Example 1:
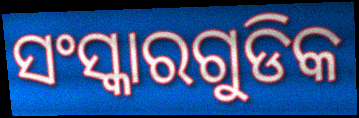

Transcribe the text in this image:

ସଂସ୍କାରଗୁଡିକ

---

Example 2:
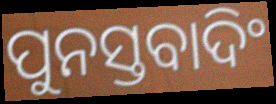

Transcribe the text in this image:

ପୁନସ୍ତବାଦିଂ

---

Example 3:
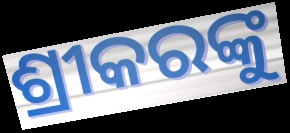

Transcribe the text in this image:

ଶ୍ରୀକରଙ୍କୁ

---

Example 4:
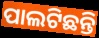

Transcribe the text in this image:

ପାଲଟିଛନ୍ତି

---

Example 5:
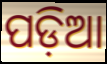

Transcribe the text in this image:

ପଡ଼ିଆ